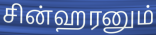
சின்ஹரனும்